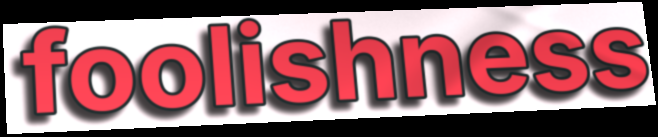
foolishness